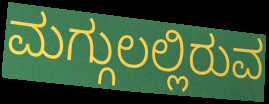
ಮಗ್ಗುಲಲ್ಲಿರುವ